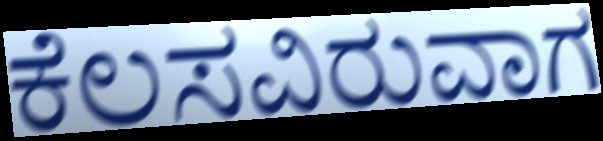
ಕೆಲಸವಿರುವಾಗ